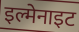
इल्मेनाइट